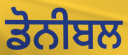
ਡੋਨੀਬਲ